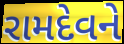
રામદેવને